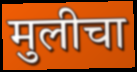
मुलीचा